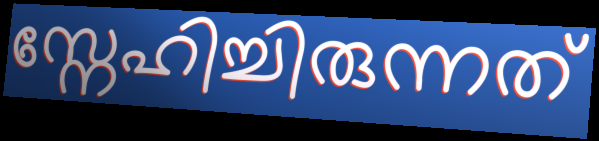
സ്നേഹിച്ചിരുന്നത്